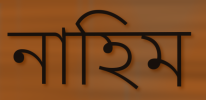
নাহিম